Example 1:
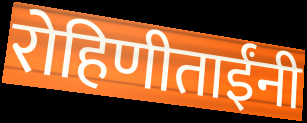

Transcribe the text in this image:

रोहिणीताईंनी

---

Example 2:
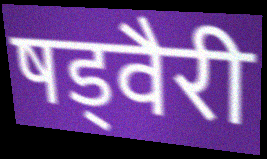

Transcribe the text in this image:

षड्वैरी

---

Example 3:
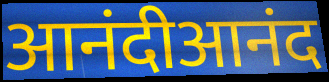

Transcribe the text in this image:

आनंदीआनंद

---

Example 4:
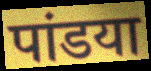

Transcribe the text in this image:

पांडया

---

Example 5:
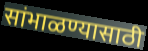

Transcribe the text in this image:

सांभाळण्यासाठी